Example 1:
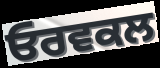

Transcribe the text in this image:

ਓਰਵਕਲ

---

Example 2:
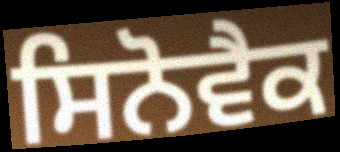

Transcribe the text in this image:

ਸਿਨੋਵੈਕ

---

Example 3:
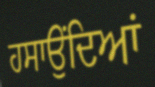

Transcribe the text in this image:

ਹਸਾਉਂਦਿਆਂ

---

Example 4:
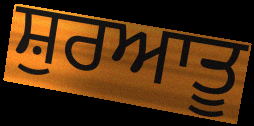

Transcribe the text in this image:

ਸ਼ੁਰਆਤੂ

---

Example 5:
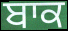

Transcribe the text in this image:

ਬਾਕ